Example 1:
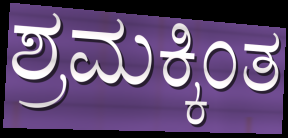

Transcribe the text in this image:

ಶ್ರಮಕ್ಕಿಂತ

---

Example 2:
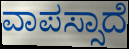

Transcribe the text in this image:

ವಾಪಸ್ಸಾದೆ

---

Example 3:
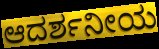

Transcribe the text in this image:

ಆದರ್ಶನೀಯ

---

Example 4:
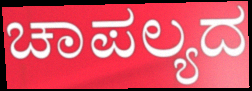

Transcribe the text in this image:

ಚಾಪಲ್ಯದ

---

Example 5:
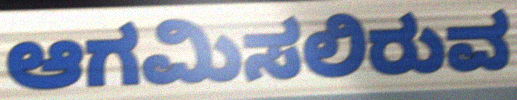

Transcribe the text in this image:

ಆಗಮಿಸಲಿರುವ